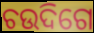
ଚଉଦିଗେ